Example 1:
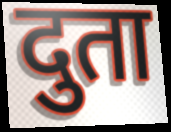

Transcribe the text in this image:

दुता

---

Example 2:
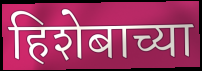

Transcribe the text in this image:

हिशेबाच्या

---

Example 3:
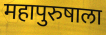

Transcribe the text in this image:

महापुरुषाला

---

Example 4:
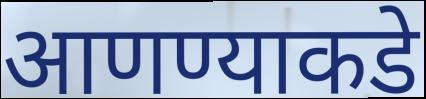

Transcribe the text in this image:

आणण्याकडे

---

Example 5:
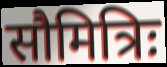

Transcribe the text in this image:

सौमित्रिः